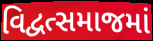
વિદ્વત્સમાજમાં